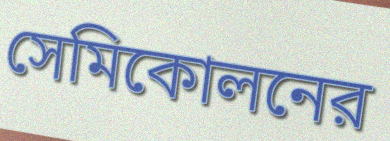
সেমিকোলনের